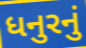
ધનુરનું